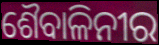
ଶୈବାଳିନୀର